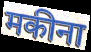
मकीना